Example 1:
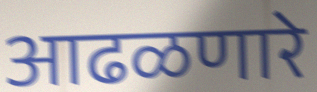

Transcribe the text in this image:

आढळणारे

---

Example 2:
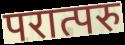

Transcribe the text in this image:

परात्परु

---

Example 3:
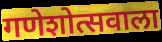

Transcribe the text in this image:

गणेशोत्सवाला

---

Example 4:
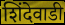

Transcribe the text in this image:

शिंदेवाडी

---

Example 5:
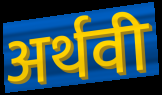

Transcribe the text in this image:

अर्थवी